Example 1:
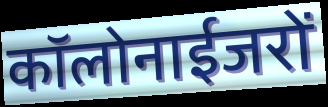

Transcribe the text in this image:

कॉलोनाईजरों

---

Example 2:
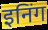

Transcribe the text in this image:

इनिंग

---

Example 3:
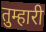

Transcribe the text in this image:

तुम्हारी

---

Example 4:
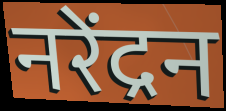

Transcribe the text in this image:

नरेंद्रन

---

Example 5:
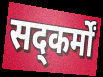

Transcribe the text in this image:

सद्कर्मों